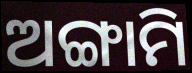
ଅଙ୍ଗାମି